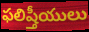
ఫలిష్తీయులు